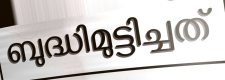
ബുദ്ധിമുട്ടിച്ചത്